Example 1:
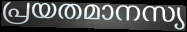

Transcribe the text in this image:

പ്രയതമാനസ്യ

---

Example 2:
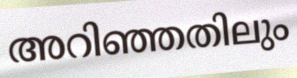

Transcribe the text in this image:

അറിഞ്ഞതിലും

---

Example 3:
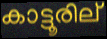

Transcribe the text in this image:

കാട്ടൂരില്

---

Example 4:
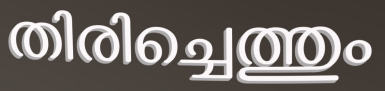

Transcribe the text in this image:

തിരിച്ചെത്തും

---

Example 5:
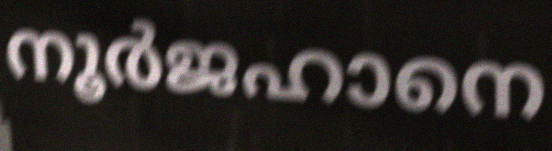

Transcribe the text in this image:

നൂർജഹാനെ